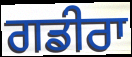
ਗਡੀਰਾ